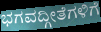
ಭಗವದ್ಗೀತೆಗಳಿಗೆ